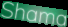
Shama